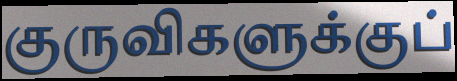
குருவிகளுக்குப்